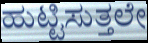
ಹುಟ್ಟಿಸುತ್ತಲೇ